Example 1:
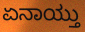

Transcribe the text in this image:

ಏನಾಯ್ತು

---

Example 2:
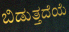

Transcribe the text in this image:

ಬಿಡುತ್ತದೆಯೆ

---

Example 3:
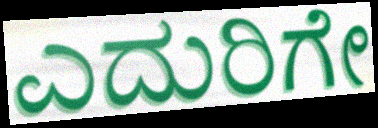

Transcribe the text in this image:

ಎದುರಿಗೇ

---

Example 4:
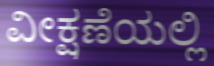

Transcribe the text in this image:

ವೀಕ್ಷಣೆಯಲ್ಲಿ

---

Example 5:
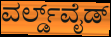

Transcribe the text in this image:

ವರ್ಲ್ಡ್‌ವೈಡ್